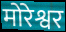
मोरेश्वर